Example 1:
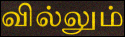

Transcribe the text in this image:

வில்லும்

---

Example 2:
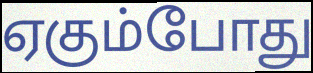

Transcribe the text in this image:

ஏகும்போது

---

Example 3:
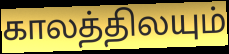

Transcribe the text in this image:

காலத்திலயும்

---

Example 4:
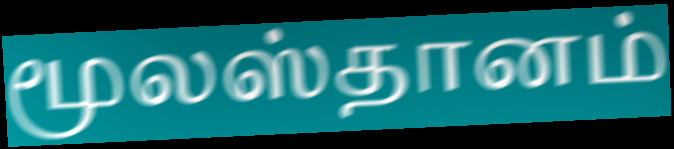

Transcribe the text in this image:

மூலஸ்தானம்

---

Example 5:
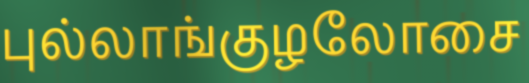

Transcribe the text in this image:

புல்லாங்குழலோசை